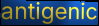
antigenic